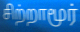
சிற்றாமூர்